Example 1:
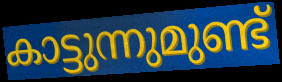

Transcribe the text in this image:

കാട്ടുന്നുമുണ്ട്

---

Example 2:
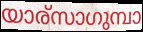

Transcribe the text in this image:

യാര്സാഗുമ്പാ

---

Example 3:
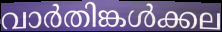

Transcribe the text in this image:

വാർതിങ്കൾക്കല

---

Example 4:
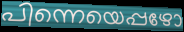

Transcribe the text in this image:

പിന്നെയെപ്പഴോ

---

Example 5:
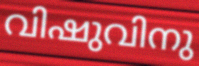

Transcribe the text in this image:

വിഷുവിനു